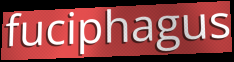
fuciphagus